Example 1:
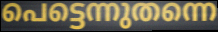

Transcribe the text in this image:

പെട്ടെന്നുതന്നെ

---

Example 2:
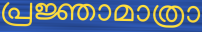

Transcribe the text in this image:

പ്രജ്ഞാമാത്രാ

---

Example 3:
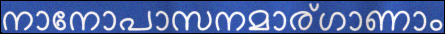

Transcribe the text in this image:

നാനോപാസനമാര്ഗാണാം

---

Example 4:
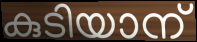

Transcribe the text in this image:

കുടിയാന്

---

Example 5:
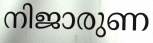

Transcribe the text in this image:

നിജാരുണ